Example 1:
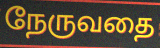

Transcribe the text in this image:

நேருவதை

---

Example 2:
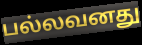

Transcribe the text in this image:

பல்லவனது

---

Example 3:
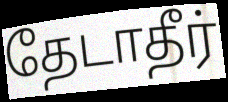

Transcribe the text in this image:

தேடாதீர்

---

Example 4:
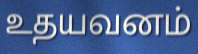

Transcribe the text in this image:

உதயவனம்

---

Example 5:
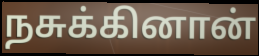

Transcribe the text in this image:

நசுக்கினான்